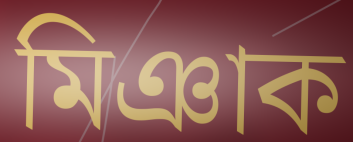
মিঞাক